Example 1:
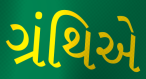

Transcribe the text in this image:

ગ્રંથિએ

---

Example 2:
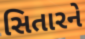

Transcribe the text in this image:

સિતારને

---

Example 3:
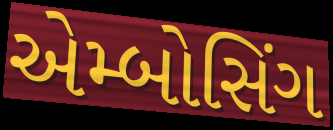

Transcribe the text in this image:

એમ્બોસિંગ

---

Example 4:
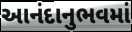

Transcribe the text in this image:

આનંદાનુભવમાં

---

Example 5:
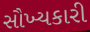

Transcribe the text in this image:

સૌખ્યકારી